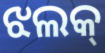
ଝଲକ୍